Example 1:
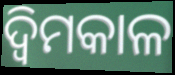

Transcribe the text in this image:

ଦ୍ବିମକାଳ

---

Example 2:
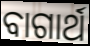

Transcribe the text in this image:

ବାଗାର୍ଥ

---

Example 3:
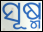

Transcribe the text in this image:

ସୂଷ୍ମ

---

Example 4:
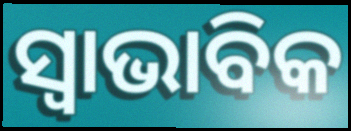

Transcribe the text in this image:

ସ୍ୱାଭାବିକ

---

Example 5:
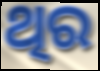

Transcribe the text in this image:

ଥିର